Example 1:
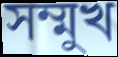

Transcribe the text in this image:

সম্মুখ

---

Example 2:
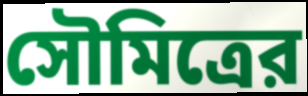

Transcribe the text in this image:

সৌমিত্রের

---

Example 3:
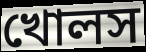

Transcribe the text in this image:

খোলস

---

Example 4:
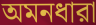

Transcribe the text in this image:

অমনধারা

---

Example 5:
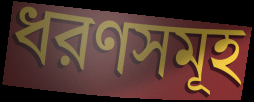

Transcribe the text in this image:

ধরণসমূহ